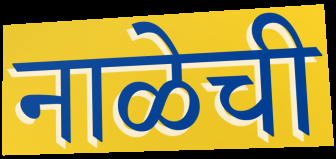
नाळेची